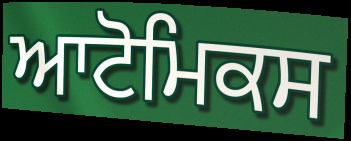
ਆਟੋਮਿਕਸ